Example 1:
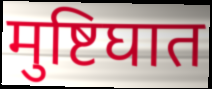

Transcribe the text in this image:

मुष्टिघात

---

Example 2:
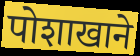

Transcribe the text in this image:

पोशाखाने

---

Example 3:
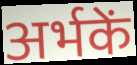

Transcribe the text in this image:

अर्भकें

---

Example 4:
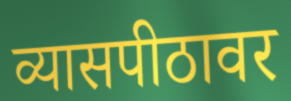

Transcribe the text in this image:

व्यासपीठावर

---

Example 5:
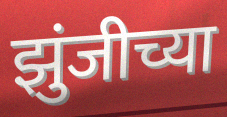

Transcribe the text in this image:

झुंजीच्या